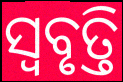
ସ୍ୱବୃତ୍ତି